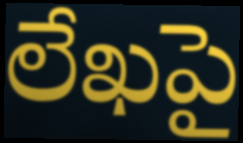
లేఖపై